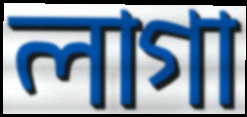
লাগা